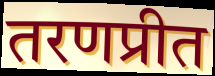
तरणप्रीत